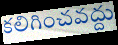
కలిగించవద్దు